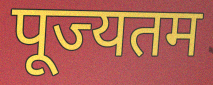
पूज्यतम